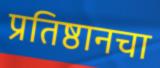
प्रतिष्ठानचा